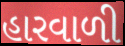
હારવાળી